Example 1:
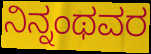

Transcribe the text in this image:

ನಿನ್ನಂಥವರ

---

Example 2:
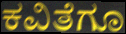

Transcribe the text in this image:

ಕವಿತೆಗೂ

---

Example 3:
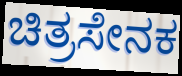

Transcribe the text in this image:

ಚಿತ್ರಸೇನಕ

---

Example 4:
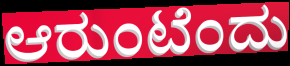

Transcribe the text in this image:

ಆರುಂಟೆಂದು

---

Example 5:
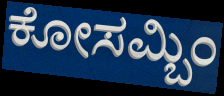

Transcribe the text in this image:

ಕೋಸಮ್ಬಿಂ